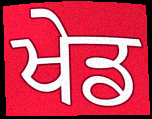
ਖੇਡ